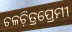
ଚଳଚ଼ିତ୍ରପ୍ରେମୀ